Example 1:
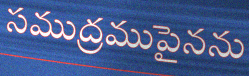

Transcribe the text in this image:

సముద్రముపైనను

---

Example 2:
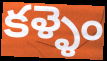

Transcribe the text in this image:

కళ్ళెం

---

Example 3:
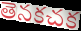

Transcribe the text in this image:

తెనకచక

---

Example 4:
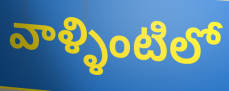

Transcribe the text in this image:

వాళ్ళింటిలో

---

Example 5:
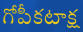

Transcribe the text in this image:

గోపీకటాక్ష